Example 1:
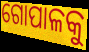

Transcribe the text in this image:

ଗୋପାଳକୁ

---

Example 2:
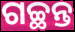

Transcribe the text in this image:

ଗଚ୍ଛନ୍ତ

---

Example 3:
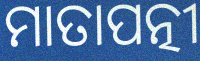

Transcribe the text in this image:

ମାତାପତ୍ନୀ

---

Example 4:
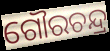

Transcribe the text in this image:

ଗୌରଚନ୍ଦ୍ର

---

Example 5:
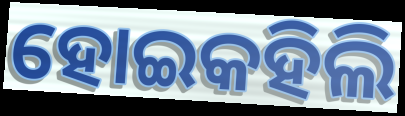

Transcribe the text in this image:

ହୋଇକହିଲି